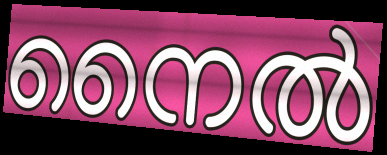
നൈൽ